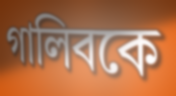
গালিবকে